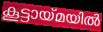
കൂട്ടായ്മയിൽ